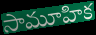
సామూహిక